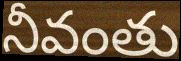
నీవంతు